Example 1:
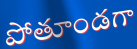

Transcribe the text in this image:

పోతూండగా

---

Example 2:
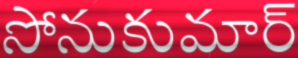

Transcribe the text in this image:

సోనుకుమార్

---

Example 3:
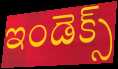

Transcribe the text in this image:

ఇండెక్స్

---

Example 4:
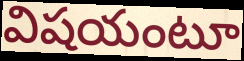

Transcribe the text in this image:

విషయంటూ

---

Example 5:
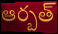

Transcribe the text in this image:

ఆర్బత్